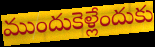
ముందుకెళ్లేందుకు